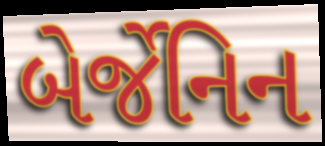
બેર્જેનિન